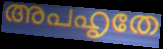
അപഹൃതേ